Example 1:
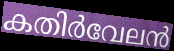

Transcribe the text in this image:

കതിർവേലൻ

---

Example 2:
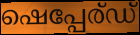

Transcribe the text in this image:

ഷെപ്പേര്ഡ്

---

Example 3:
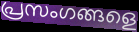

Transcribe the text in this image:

പ്രസംഗങ്ങളെ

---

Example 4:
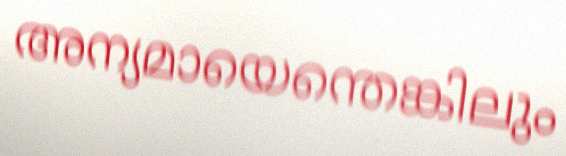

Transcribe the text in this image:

അന്യമായെന്തെങ്കിലും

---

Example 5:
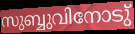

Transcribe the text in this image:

സുബ്ബുവിനോടു്